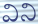
విని